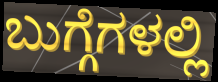
ಬುಗ್ಗೆಗಳಲ್ಲಿ